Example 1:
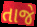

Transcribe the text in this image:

તાજે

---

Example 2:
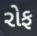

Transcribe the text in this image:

રોફ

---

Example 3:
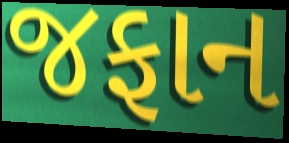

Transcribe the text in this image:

જફાન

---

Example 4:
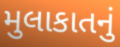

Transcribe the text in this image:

મુલાકાતનું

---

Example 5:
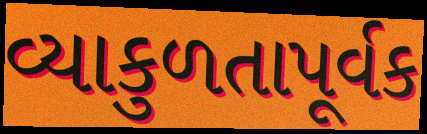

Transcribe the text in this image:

વ્યાકુળતાપૂર્વક